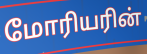
மோரியரின்